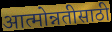
आत्मोन्नतीसाठी